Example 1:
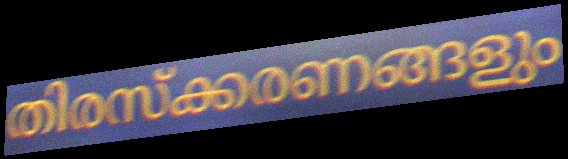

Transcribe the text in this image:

തിരസ്ക്കരണങ്ങളും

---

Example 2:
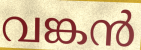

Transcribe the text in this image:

വങ്കൻ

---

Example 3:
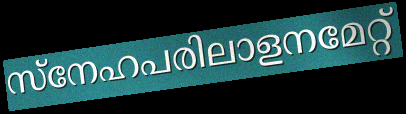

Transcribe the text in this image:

സ്നേഹപരിലാളനമേറ്റ്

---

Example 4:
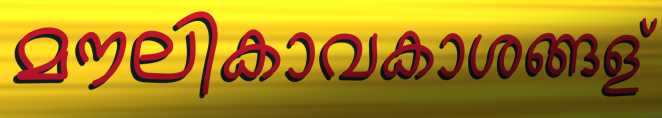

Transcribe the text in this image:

മൗലികാവകാശങ്ങള്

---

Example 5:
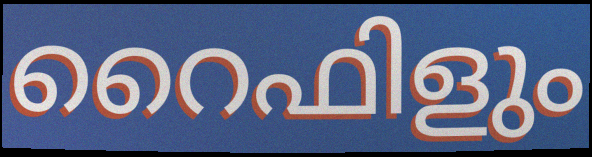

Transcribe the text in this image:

റൈഫിളും